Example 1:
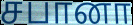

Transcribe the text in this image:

சபானா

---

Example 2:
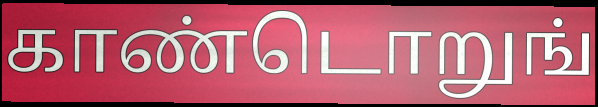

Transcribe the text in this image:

காண்டொறுங்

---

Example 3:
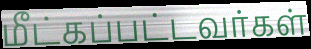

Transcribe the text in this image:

மீட்கப்பட்டவர்கள்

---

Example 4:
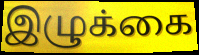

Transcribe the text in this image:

இழுக்கை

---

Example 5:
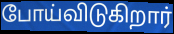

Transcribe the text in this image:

போய்விடுகிறார்